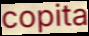
copita